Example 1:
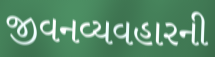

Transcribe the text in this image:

જીવનવ્યવહારની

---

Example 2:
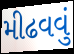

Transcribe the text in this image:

મીઢવવું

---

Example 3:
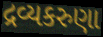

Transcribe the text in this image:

દ્રવ્યકરુણા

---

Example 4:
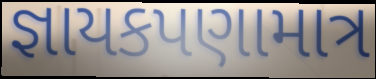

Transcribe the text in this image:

જ્ઞાયકપણામાત્ર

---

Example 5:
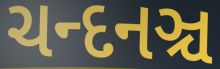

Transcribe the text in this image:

ચન્દનઞ્ચ